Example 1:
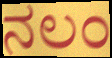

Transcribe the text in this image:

ನಲಂ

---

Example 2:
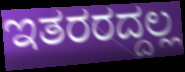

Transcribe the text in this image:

ಇತರರದ್ದಲ್ಲ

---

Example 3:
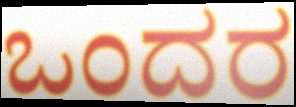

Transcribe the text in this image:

ಒಂದರ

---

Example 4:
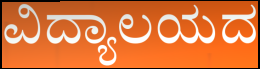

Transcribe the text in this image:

ವಿದ್ಯಾಲಯದ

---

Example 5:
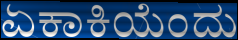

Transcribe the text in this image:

ಏಕಾಕಿಯೆಂದು